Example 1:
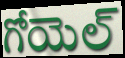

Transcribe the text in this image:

గోయెల్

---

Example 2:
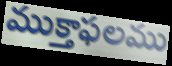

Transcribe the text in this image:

ముక్తాఫలము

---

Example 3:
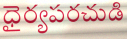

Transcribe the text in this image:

ధైర్యపరచుడి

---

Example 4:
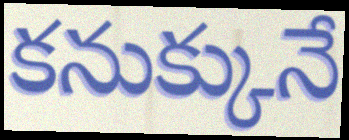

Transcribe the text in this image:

కనుక్కునే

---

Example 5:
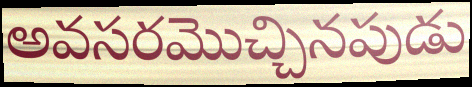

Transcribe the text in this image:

అవసరమొచ్చినపుడు